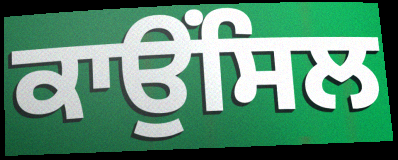
ਕਾਉਂਸਿਲ